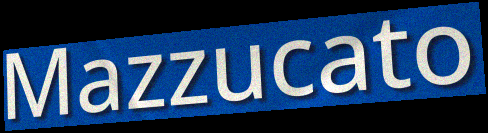
Mazzucato